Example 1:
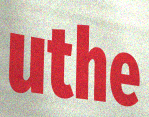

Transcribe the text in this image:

uthe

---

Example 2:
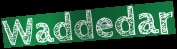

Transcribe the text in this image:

Waddedar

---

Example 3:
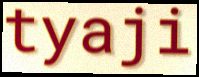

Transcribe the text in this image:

tyaji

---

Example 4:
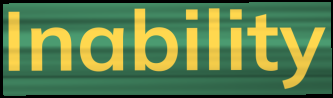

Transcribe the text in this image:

Inability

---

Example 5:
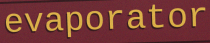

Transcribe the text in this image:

evaporator